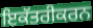
ਇਕੱਤਰੀਕਰਨ